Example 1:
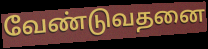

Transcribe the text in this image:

வேண்டுவதனை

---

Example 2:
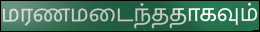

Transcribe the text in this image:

மரணமடைந்ததாகவும்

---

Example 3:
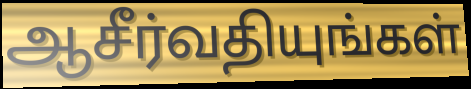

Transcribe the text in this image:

ஆசீர்வதியுங்கள்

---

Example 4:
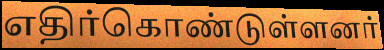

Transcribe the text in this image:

எதிர்கொண்டுள்ளனர்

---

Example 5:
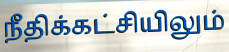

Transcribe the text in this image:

நீதிக்கட்சியிலும்